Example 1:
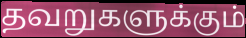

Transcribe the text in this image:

தவறுகளுக்கும்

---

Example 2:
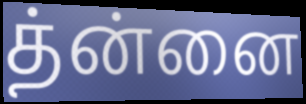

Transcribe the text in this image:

த்ன்னை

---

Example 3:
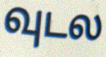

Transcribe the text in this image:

வுடல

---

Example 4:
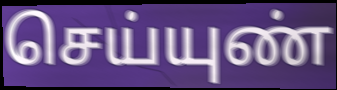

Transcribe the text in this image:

செய்யுண்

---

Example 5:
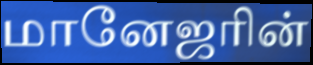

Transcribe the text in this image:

மானேஜரின்